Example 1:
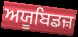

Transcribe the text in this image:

ਅਯੂਬਿਡਜ਼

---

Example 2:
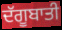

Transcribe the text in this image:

ਦੱਗੂਬਾਤੀ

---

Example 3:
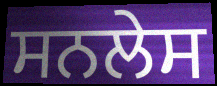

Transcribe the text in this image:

ਸਨਲੇਸ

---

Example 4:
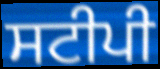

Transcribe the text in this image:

ਸਟੀਪੀ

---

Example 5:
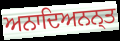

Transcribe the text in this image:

ਅਨਾਦਿਅਨਨ੍ਤ